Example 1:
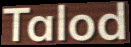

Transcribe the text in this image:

Talod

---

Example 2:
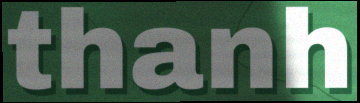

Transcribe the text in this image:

thanh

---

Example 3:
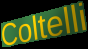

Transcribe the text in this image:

Coltelli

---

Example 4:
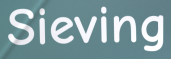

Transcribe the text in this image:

Sieving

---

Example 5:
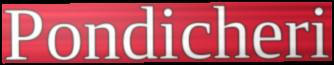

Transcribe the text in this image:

Pondicheri